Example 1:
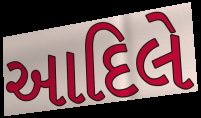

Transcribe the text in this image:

આદિલે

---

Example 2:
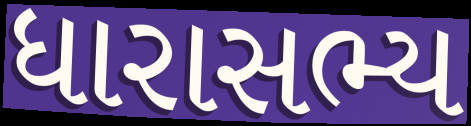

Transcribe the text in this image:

ધારાસભ્ય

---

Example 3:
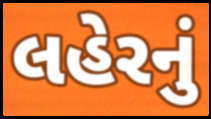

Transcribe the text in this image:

લહેરનું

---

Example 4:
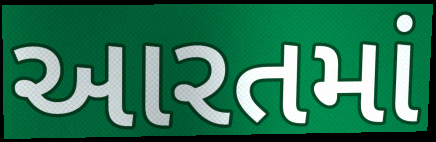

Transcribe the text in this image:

આરતમાં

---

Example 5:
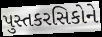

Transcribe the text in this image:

પુસ્તકરસિકોને